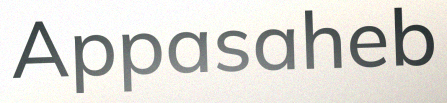
Appasaheb